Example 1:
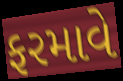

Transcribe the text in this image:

ફરમાવે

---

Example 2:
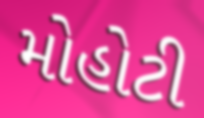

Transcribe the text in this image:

મોહોટી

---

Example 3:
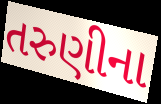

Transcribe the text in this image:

તરુણીના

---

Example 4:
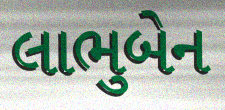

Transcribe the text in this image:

લાભુબેન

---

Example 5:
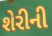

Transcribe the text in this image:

શેરીની